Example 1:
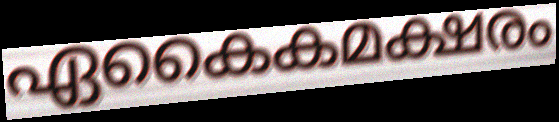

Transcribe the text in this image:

ഏകൈകമക്ഷരം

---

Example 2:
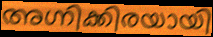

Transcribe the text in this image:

അഗ്നിക്കിരയായി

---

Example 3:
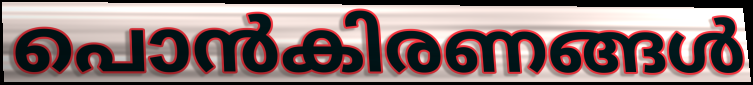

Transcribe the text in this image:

പൊൻകിരണങ്ങൾ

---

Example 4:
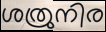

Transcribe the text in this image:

ശത്രുനിര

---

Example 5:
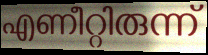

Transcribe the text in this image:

എണീറ്റിരുന്ന്